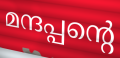
മന്ദപ്പന്റെ